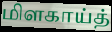
மிளகாய்த்